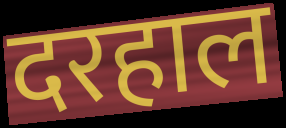
दरहाल